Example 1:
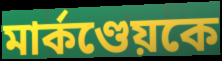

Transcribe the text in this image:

মার্কণ্ডেয়কে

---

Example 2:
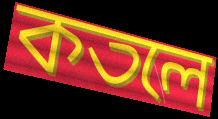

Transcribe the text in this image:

কতলে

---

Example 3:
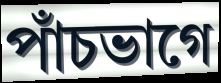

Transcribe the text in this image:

পাঁচভাগে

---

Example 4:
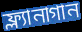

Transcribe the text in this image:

ফ্ল্যানাগান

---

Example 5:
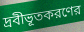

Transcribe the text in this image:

দ্রবীভূতকরণের